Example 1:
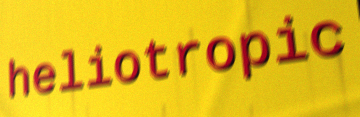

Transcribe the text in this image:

heliotropic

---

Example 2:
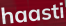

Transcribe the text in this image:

haasti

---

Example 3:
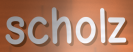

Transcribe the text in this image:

scholz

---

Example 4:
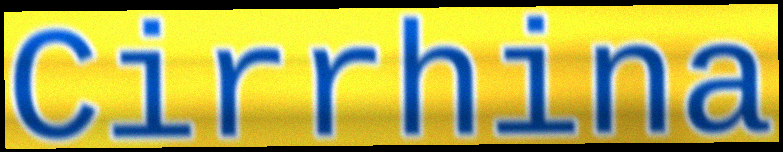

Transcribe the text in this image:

Cirrhina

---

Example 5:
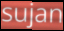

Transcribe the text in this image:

sujan